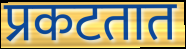
प्रकटतात